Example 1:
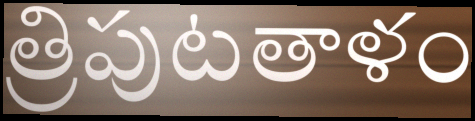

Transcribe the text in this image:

త్రిపుటతాళం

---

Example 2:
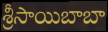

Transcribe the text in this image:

శ్రీసాయిబాబా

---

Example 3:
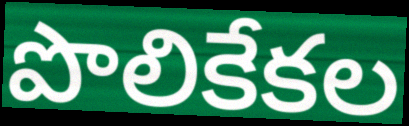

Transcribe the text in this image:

పొలికేకల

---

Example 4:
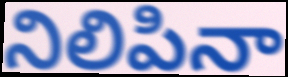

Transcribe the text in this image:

నిలిపినా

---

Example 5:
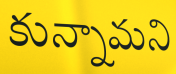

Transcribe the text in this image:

కున్నామని